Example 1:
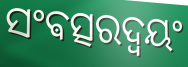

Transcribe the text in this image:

ସଂଵତ୍ସରଦ୍ଵୟଂ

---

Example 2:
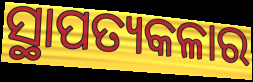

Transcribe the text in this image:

ସ୍ଥାପତ୍ୟକଳାର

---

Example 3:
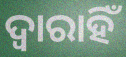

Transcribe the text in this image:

ଦ୍ୱାରାହିଁ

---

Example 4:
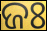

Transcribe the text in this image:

ଜଃ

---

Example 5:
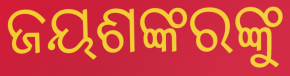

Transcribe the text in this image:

ଜୟଶଙ୍କରଙ୍କୁ